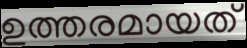
ഉത്തരമായത്